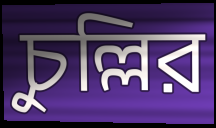
চুল্লির